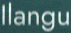
Ilangu